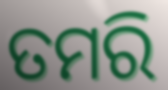
ତମରି